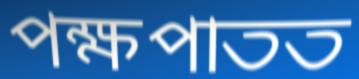
পক্ষপাতত